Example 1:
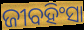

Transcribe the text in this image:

ଜୀବହିଂସା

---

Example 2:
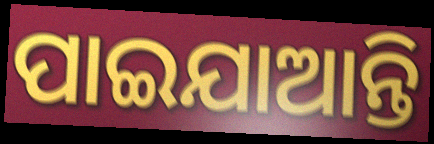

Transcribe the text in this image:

ପାଇଯାଆନ୍ତି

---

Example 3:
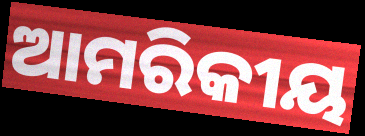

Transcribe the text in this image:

ଆମରିକୀୟ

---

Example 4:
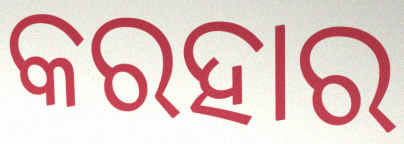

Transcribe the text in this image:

କରହାର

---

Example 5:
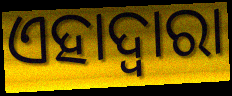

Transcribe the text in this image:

ଏହାଦ୍ୱାରା